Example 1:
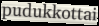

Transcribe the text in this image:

pudukkottai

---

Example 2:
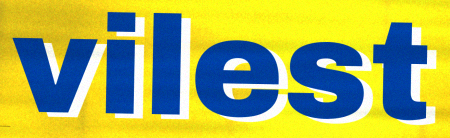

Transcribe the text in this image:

vilest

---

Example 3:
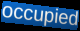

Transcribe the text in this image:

occupied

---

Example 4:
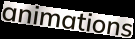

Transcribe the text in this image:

animations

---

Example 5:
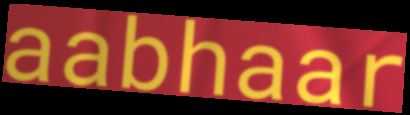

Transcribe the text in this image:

aabhaar